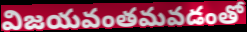
విజయవంతమవడంతో